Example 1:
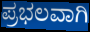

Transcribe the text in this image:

ಪ್ರಭಲವಾಗಿ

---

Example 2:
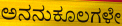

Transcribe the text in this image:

ಅನನುಕೂಲಗಳೇ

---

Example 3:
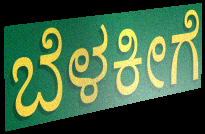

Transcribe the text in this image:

ಬೆಳಕೀಗೆ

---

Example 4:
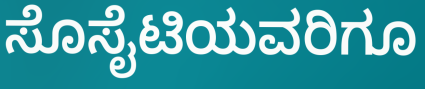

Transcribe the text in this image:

ಸೊಸೈಟಿಯವರಿಗೂ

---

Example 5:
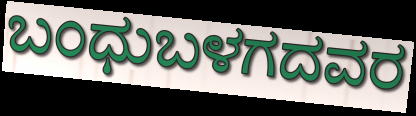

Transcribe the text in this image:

ಬಂಧುಬಳಗದವರ